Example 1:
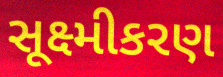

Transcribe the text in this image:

સૂક્ષ્મીકરણ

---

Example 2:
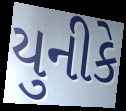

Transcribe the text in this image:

યુનીકે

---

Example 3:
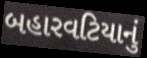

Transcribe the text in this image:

બહારવટિયાનું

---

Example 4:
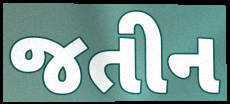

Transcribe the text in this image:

જતીન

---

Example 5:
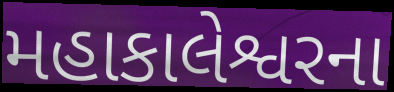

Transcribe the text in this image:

મહાકાલેશ્વરના